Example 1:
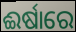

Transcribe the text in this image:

ଈର୍ଷାରେ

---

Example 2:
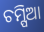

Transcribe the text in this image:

ଚମ୍ପିଆ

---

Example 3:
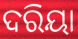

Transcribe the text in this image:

ଦରିୟା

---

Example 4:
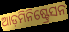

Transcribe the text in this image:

ଆଡ଼ମିନିଷ୍ଟ୍ରେସନ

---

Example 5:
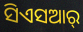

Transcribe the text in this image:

ସିଏସଆର୍